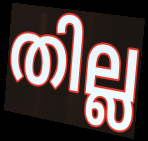
തില്ല